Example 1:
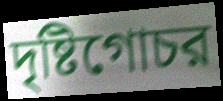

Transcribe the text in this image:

দৃষ্টিগোচর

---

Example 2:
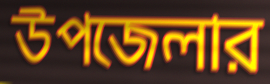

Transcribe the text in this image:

উপজেলার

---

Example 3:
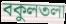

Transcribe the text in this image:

বকুলতলা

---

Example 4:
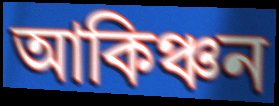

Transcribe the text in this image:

আকিঞ্চন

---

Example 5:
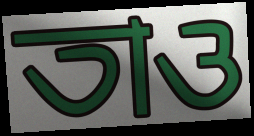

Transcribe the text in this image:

তাও